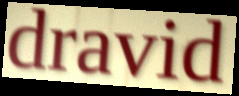
dravid